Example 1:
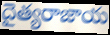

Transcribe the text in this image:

దైత్యరాజాయ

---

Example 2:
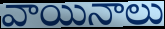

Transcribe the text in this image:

వాయినాలు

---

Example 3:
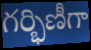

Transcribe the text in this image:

గర్భిణీగా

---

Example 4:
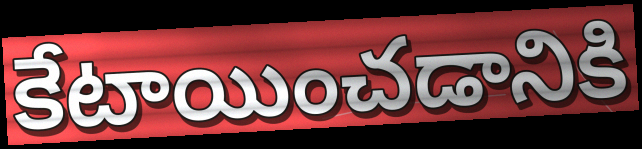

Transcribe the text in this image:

కేటాయించడానికి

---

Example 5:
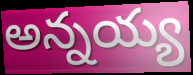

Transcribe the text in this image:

అన్నయ్య